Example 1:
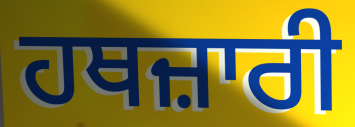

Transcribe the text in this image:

ਹਥਜ਼ਾਰੀ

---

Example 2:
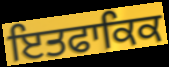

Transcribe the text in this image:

ਇਤਫਾਕਿਕ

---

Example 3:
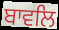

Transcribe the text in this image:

ਬਾਵਲਿ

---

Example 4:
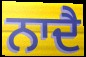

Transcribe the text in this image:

ਨਾਦੈ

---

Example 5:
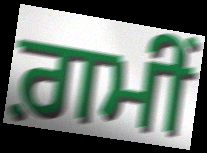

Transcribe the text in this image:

ਗ਼ਮੀਂ